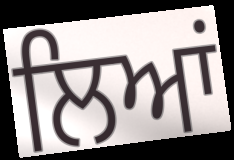
ਲਿਆਂ